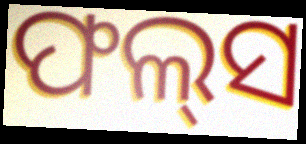
ଫଲ୍‍ସ